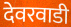
देवरवाडी